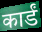
कार्डं